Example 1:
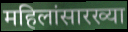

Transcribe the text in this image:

महिलांसारख्या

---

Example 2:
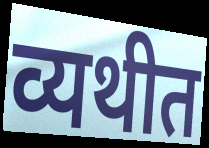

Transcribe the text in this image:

व्यथीत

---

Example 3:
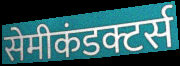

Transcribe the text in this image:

सेमीकंडक्टर्स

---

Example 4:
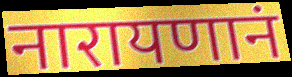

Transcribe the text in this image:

नारायणानं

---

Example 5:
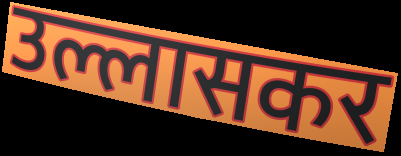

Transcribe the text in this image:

उल्लासकर